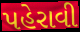
પહેરાવી